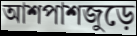
আশপাশজুড়ে